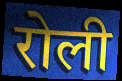
रोली